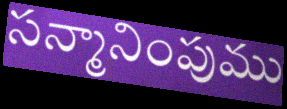
సన్మానింపుము